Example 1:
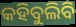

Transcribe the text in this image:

କହିବୁଲିବି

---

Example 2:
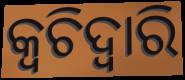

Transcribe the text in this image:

କ୍ଵଚିଦ୍ୱାରି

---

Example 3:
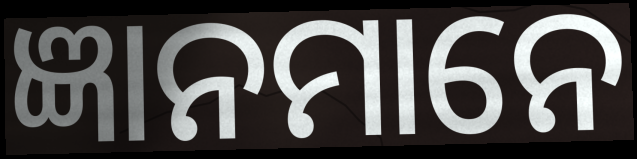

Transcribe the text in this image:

ଜ୍ଞାନମାନେ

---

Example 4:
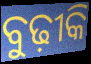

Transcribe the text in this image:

ବୁଢ଼ୀକି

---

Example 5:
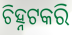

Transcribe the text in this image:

ଚିହ୍ନଟକରି